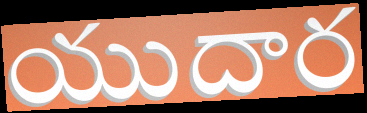
యుదార